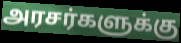
அரசர்களுக்கு